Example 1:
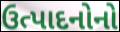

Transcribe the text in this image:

ઉત્પાદનોનો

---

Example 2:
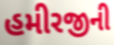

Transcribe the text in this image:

હમીરજીની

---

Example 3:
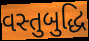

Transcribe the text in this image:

વસ્તુબુદ્ધિ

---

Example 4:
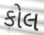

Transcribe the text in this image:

કોલ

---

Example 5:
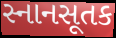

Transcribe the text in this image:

સ્નાનસૂતક